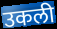
उकली